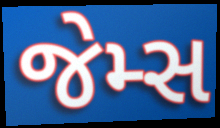
જેમ્સ